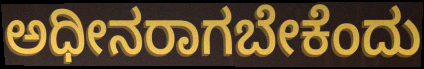
ಅಧೀನರಾಗಬೇಕೆಂದು